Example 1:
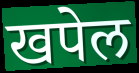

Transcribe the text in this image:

खपेल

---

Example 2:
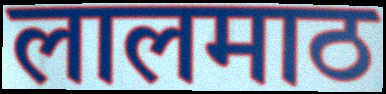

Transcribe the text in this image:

लालमाठ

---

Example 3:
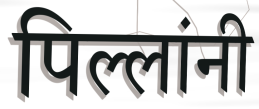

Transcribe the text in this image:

पिल्लांनी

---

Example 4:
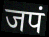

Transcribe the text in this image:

जपं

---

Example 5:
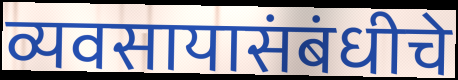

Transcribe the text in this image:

व्यवसायासंबंधीचे